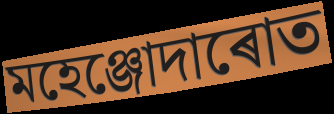
মহেঞ্জোদাৰোত